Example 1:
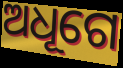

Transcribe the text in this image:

ଅଧୂଗେ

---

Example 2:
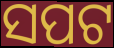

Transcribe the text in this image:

ସପଟ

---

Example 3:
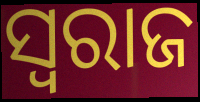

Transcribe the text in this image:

ସ୍ବରାଜ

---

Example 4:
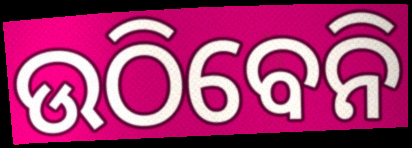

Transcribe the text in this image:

ଉଠିବେନି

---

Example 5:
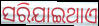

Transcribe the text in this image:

ସରିଯାଇଥାଏ